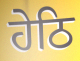
ਹੇਠਿ